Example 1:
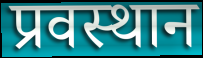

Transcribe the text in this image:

प्रवस्थान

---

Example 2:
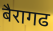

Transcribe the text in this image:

बैरागढ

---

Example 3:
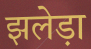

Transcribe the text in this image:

झलेड़ा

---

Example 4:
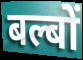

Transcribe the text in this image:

बल्बों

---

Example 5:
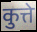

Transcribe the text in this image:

कुत्ते